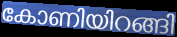
കോണിയിറങ്ങി